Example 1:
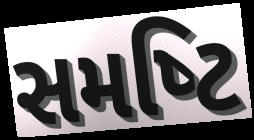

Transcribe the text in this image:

સમષ્‍ટિ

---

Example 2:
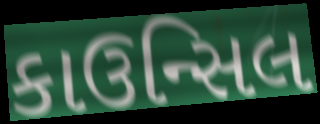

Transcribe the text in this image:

કાઉન્‍સિલ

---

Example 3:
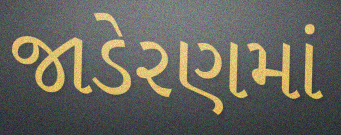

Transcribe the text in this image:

જાડેરણમાં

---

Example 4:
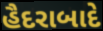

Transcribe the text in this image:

હૈદરાબાદે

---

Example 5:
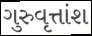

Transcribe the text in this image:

ગુરુવૃત્તાંશ